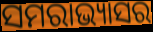
ସମରାଭ୍ୟାସର